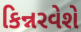
કિન્નરવેશે